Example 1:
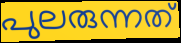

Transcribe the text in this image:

പുലരുന്നത്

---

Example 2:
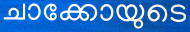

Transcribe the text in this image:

ചാക്കോയുടെ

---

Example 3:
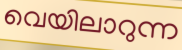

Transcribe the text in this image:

വെയിലാറുന്ന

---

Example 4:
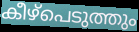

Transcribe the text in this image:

കീഴ്പെടുത്തും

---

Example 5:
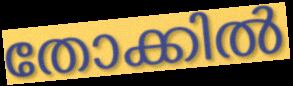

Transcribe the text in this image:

തോക്കിൽ